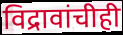
विद्रावांचीही